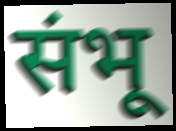
संभू